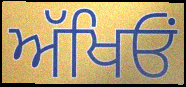
ਅੱਖਿਓਂ